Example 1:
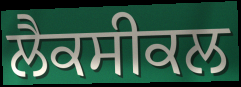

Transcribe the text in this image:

ਲੈਕਸੀਕਲ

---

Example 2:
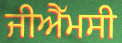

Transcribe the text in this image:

ਜੀਐੱਮਸੀ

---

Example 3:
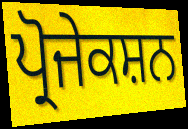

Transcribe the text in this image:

ਪ੍ਰੋਜੇਕਸ਼ਨ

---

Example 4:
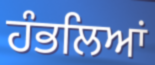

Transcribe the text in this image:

ਹੰਭਲਿਆਂ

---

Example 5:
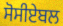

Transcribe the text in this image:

ਸੋਸੀਏਬਲ